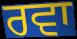
ਰਵਾ